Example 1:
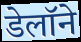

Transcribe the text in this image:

डेलॉने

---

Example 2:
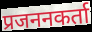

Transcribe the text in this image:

प्रजननकर्ता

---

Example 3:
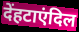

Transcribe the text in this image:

देंहटाएंदिल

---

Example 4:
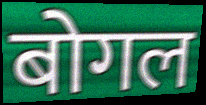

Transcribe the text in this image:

बोगल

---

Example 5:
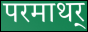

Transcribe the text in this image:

परमाथर्